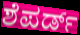
ಶೆಪರ್ಡ್